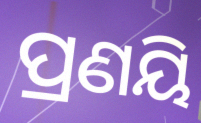
ପ୍ରଣୟି